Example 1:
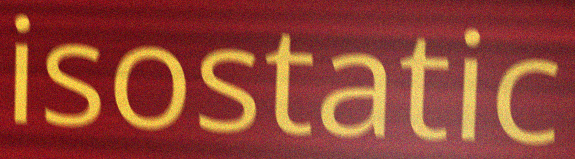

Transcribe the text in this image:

isostatic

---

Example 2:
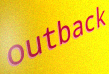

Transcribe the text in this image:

outback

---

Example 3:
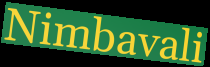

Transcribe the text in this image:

Nimbavali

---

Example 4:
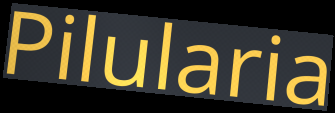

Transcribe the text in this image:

Pilularia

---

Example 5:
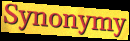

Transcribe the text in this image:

Synonymy